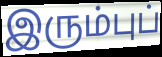
இரும்புப்